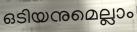
ഒടിയനുമെല്ലാം